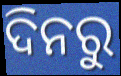
ଦିନରୁ